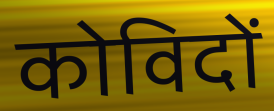
कोविदों